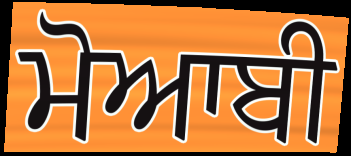
ਮੋਆਬੀ